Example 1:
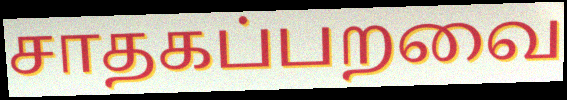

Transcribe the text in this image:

சாதகப்பறவை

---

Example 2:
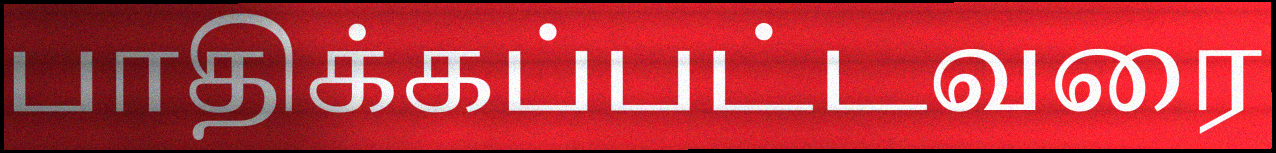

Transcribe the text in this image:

பாதிக்கப்பட்டவரை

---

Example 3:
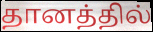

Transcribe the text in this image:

தானத்தில்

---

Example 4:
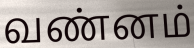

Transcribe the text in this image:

வண்னம்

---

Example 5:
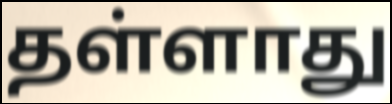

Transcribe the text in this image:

தள்ளாது